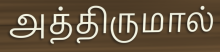
அத்திருமால்